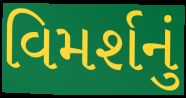
વિમર્શનું